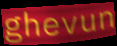
ghevun